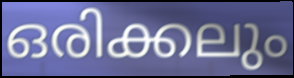
ഒരിക്കലും